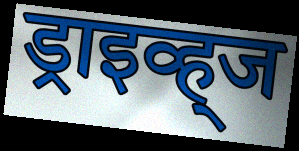
ड्राइव्ह्ज